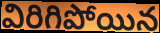
విరిగిపోయిన